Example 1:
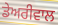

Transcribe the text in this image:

ਡੇਅਰੀਵਾਲ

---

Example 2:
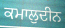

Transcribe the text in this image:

ਕਮਾਲੁਦੀਨ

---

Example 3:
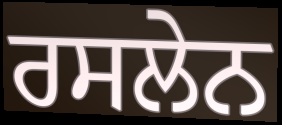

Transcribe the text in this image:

ਰਸਲੇਨ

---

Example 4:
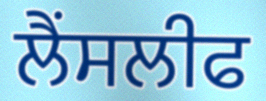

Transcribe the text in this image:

ਲੈਂਸਲੀਫ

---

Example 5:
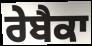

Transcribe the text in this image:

ਰੇਬੈਕਾ